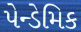
પેન્ડેમિક